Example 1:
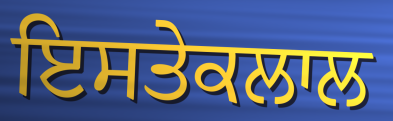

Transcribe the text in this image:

ਇਸਤੇਕਲਾਲ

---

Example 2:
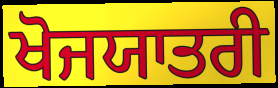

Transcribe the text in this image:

ਖੋਜਯਾਤਰੀ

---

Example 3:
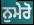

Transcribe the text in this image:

ਨੁਮੇਰੋ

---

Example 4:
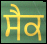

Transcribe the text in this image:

ਸੈਕ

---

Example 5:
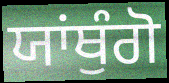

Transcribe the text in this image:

ਯਾਂਥੁੰਗੋ